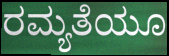
ರಮ್ಯತೆಯೂ